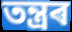
তন্ত্ৰৰ